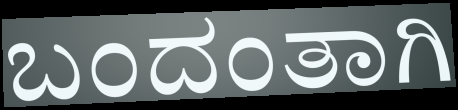
ಬಂದಂತಾಗಿ